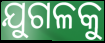
ଯୁଗଳକୁ